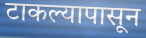
टाकल्यापासून